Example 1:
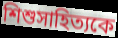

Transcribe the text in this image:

শিশুসাহিত্যকে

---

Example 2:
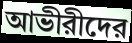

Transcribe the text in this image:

আভীরীদের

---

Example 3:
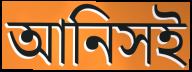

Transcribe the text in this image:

আনিসই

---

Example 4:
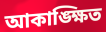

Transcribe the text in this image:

আকাঙ্ক্ষিত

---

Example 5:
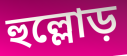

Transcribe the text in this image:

হুল্লোড়